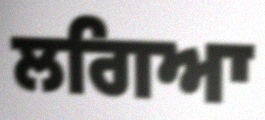
ਲਗਿਆ